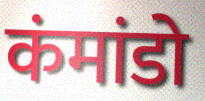
कंमांडो